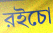
রইচো